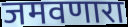
जमवणारा